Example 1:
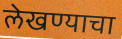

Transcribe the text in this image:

लेखण्याचा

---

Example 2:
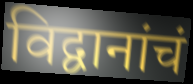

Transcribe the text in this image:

विद्वानांचं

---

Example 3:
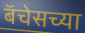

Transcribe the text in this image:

बॅचेसच्या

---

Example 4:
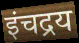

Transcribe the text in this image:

इंचद्रय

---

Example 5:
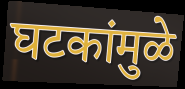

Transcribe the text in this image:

घटकांमुळे